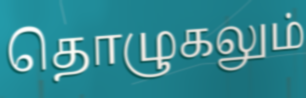
தொழுகலும்